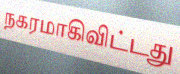
நகரமாகிவிட்டது